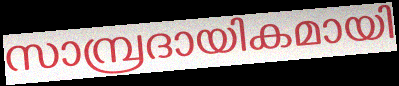
സാമ്പ്രദായികമായി